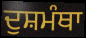
ਦੁਸ਼ਮੰਥਾ